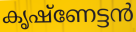
കൃഷ്ണേട്ടൻ